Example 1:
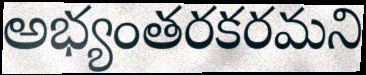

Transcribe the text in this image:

అభ్యంతరకరమని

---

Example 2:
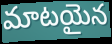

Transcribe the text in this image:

మాటయైన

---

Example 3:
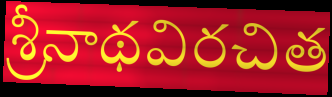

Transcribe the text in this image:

శ్రీనాథవిరచిత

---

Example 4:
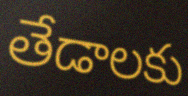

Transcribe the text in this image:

తేడాలకు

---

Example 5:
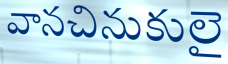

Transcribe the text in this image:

వానచినుకులై